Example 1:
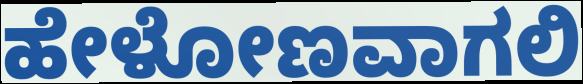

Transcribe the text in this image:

ಹೇಳೋಣವಾಗಲಿ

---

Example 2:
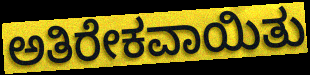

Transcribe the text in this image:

ಅತಿರೇಕವಾಯಿತು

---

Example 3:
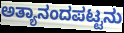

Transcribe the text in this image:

ಅತ್ಯಾನಂದಪಟ್ಟನು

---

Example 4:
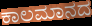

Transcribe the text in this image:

ಕಾಲಮಾನದ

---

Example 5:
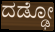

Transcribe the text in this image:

ದಡ್ಢೋ